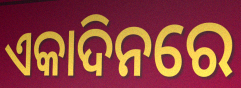
ଏକାଦିନରେ